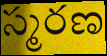
స్మరణ